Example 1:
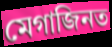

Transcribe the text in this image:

মেগাজিনত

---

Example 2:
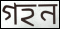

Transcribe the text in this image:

গহন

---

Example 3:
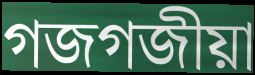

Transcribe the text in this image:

গজগজীয়া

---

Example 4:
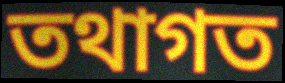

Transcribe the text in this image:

তথাগত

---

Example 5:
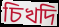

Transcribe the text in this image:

চিখদি